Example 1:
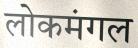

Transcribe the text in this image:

लोकमंगल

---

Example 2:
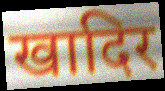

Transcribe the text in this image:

खादिर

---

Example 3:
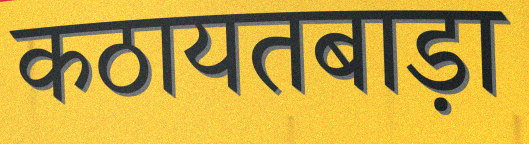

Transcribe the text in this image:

कठायतबाड़ा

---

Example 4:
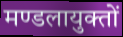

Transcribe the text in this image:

मण्डलायुक्तों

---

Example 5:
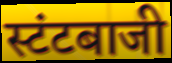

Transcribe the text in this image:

स्टंटबाजी